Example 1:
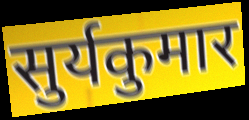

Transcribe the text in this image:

सुर्यकुमार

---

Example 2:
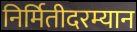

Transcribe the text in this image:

निर्मितीदरम्यान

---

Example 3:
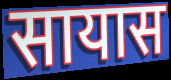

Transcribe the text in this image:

सायास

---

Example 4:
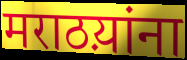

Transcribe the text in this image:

मराठय़ांना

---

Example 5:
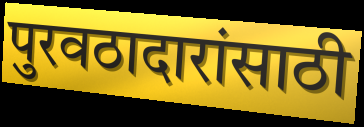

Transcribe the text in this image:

पुरवठादारांसाठी